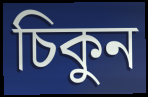
চিকুন